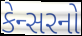
કેન્સરનો